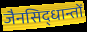
जैनसिद्धान्तों